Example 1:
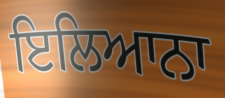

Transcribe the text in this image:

ਇਲਿਆਨਾ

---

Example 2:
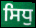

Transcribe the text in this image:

ਸਿਧੁ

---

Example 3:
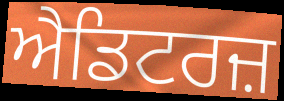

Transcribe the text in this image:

ਐਡਿਟਰਜ਼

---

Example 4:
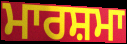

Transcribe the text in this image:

ਮਾਰਸ਼ਮਾ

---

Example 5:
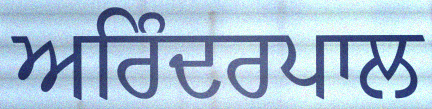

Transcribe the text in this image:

ਅਰਿੰਦਰਪਾਲ